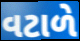
વટાળે